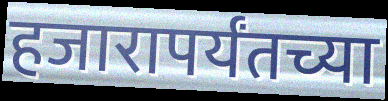
हजारापर्यंतच्या